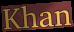
Khan